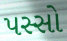
પસ્સો